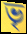
ভৃ